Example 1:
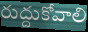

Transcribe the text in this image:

రుద్దుకోవాలి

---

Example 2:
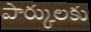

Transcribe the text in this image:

పార్కులకు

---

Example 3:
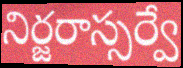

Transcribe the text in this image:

నిర్జరాస్సర్వే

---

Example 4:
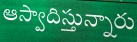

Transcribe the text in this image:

ఆస్వాదిస్తున్నారు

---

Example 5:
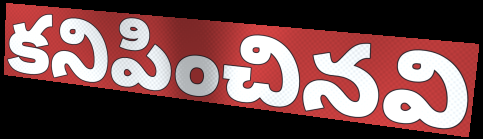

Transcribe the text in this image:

కనిపించినవి